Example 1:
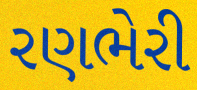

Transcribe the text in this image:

રણભેરી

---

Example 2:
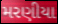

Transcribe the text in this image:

મરણીયા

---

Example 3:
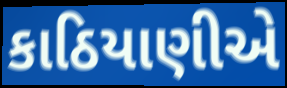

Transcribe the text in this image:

કાઠિયાણીએ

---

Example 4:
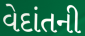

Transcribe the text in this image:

વેદાંતની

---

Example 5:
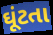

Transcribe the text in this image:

ઘૂંટતા